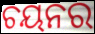
ଚୟନର